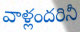
వాళ్లందరినీ